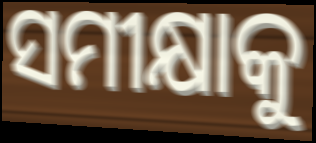
ସମୀକ୍ଷାକୁ